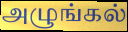
அழுங்கல்